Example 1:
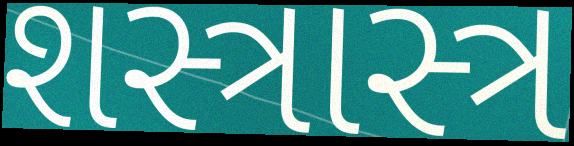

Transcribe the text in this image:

શસ્ત્રાસ્ત્ર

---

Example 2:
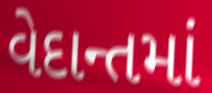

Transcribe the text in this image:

વેદાન્તમાં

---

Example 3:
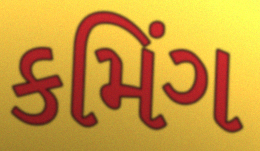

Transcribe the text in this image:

કમિંગ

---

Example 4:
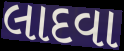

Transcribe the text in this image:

લાદવા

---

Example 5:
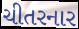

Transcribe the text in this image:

ચીતરનાર